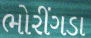
ભોરીંગડા